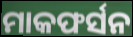
ମାକଫର୍ସନ